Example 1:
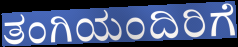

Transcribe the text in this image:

ತಂಗಿಯಂದಿರಿಗೆ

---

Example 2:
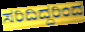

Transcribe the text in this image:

ಸರಿದಿದ್ದರಿಂದ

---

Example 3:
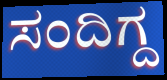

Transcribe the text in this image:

ಸಂದಿಗ್ದ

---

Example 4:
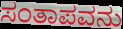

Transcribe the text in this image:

ಸಂತಾಪವನು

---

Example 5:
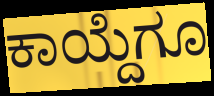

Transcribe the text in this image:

ಕಾಯ್ದೆಗೂ